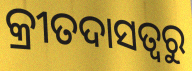
କ୍ରୀତଦାସତ୍ୱରୁ